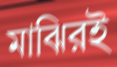
মাঝিরই